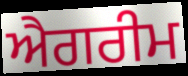
ਐਗਰੀਮ